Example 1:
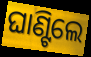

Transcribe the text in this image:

ଘାଣ୍ଟିଲେ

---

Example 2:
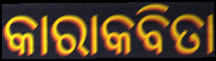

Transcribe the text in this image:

କାରାକବିତା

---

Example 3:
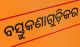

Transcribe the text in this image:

ବସ୍ତୁକଣାଗୁଡ଼ିକର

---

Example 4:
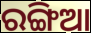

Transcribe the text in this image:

ରଙ୍ଗିଆ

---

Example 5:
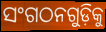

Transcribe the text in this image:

ସଂଗଠନଗୁଡ଼ିକୁ